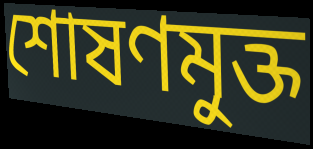
শোষণমুক্ত